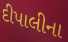
દીપાલીના